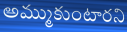
అమ్ముకుంటారని